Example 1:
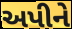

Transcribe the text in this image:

અપીને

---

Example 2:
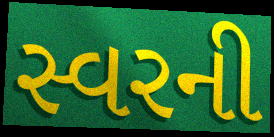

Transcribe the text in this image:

સ્વરની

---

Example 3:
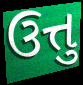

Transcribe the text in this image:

ઉત્તુ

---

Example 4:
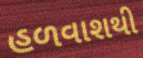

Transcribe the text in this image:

હળવાશથી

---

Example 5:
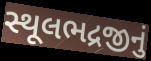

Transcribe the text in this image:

સ્થૂલભદ્રજીનું